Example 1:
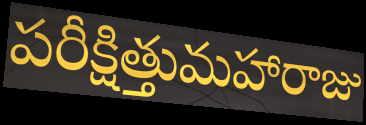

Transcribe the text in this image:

పరీక్షిత్తుమహారాజు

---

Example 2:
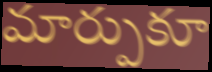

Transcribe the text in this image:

మార్పుకూ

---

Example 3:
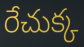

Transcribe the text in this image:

రేచుక్క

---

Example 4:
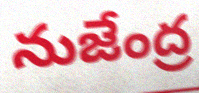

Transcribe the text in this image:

నుజేంద్ర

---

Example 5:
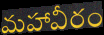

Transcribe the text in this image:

మహావీరం